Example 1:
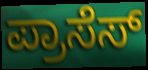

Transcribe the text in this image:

ಪ್ರಾಸೆಸ್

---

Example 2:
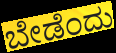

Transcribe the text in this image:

ಬೇಡೆಂದು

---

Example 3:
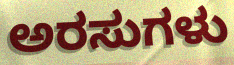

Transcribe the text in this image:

ಅರಸುಗಳು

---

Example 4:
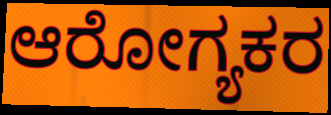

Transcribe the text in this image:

ಆರೋಗ್ಯಕರ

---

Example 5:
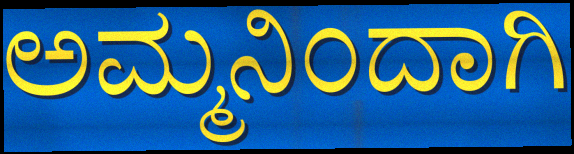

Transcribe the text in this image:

ಅಮ್ಮನಿಂದಾಗಿ